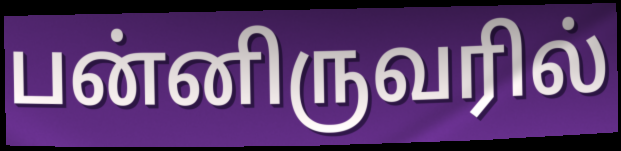
பன்னிருவரில்